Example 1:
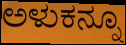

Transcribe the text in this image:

ಅಳುಕನ್ನೂ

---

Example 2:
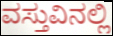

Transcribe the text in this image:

ವಸ್ತುವಿನಲ್ಲಿ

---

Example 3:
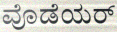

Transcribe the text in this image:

ವೊಡೆಯರ್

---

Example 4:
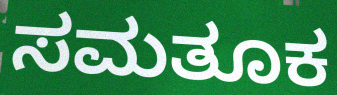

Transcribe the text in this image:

ಸಮತೂಕ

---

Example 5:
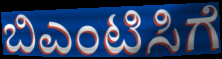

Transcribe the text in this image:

ಬಿಎಂಟಿಸಿಗೆ